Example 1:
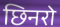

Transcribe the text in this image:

छिनरो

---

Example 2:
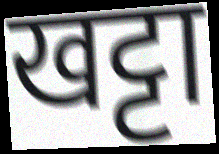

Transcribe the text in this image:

खट्टा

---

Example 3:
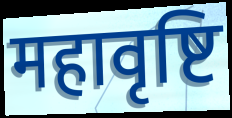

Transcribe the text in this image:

महावृष्टि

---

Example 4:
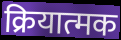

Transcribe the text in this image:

क्रियात्‍मक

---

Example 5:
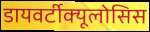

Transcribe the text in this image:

डायवर्टीक्यूलोसिस